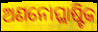
ଅଣନୋପ୍ଲାଷ୍ଟିକ